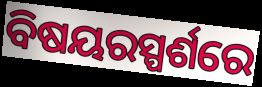
ବିଷୟରସ୍ପର୍ଶରେ